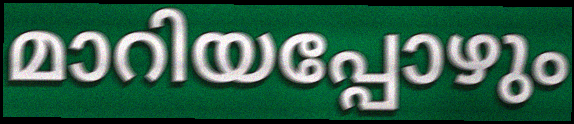
മാറിയപ്പോഴും